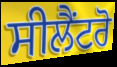
ਸੀਲੈਂਟਰੋ